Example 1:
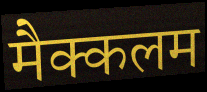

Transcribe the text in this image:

मैक्कलम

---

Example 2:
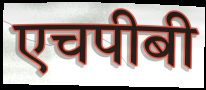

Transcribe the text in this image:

एचपीबी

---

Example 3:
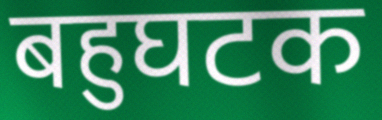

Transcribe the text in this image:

बहुघटक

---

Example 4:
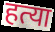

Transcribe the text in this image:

हत्‍या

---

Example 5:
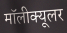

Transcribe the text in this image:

मॉलीक्यूलर